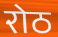
रोठ